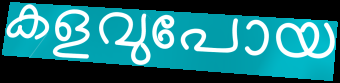
കളവുപോയ